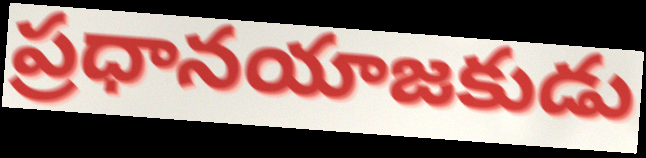
ప్రధానయాజకుడు